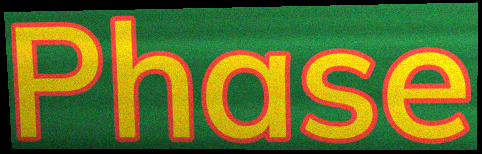
Phase